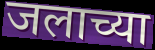
जलाच्या